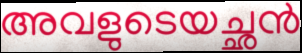
അവളുടെയച്ഛൻ